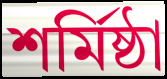
শৰ্মিষ্ঠা